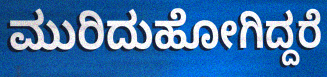
ಮುರಿದುಹೋಗಿದ್ದರೆ